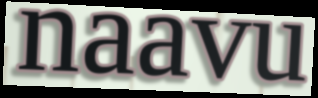
naavu